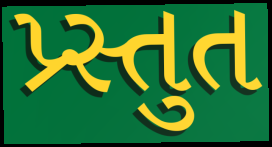
પ્ર્સ્તુત